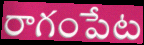
రాగంపేట